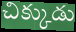
చిక్కుడు